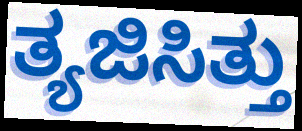
ತ್ಯಜಿಸಿತ್ತು